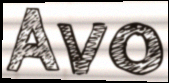
Avo